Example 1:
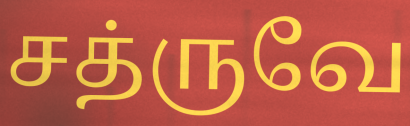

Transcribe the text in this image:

சத்ருவே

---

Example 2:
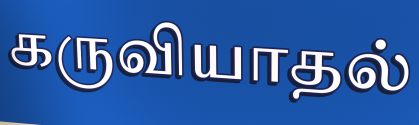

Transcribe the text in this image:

கருவியாதல்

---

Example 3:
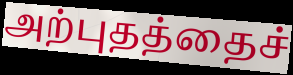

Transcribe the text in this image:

அற்புதத்தைச்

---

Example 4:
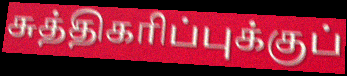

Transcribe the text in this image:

சுத்திகரிப்புக்குப்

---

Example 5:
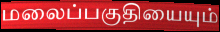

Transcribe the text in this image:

மலைப்பகுதியையும்